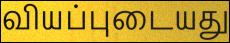
வியப்புடையது